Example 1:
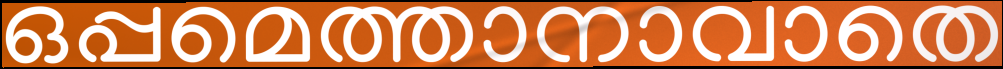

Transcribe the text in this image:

ഒപ്പമെത്താനാവാതെ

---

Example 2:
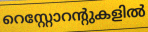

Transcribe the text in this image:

റെസ്റ്റോറന്റുകളിൽ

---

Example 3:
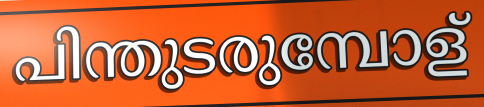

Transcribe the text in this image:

പിന്തുടരുമ്പോള്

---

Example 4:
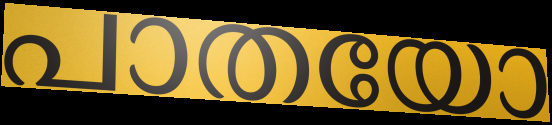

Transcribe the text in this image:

പാതയോ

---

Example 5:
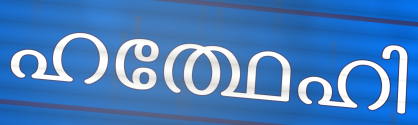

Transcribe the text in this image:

ഹത്ഥേഹി